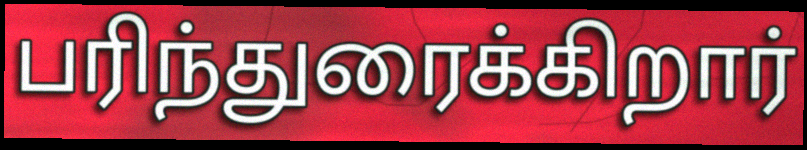
பரிந்துரைக்கிறார்